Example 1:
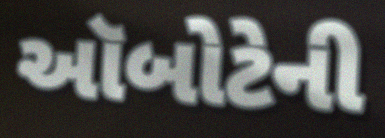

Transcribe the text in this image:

ઑબોટેની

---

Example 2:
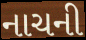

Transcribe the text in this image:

નાચની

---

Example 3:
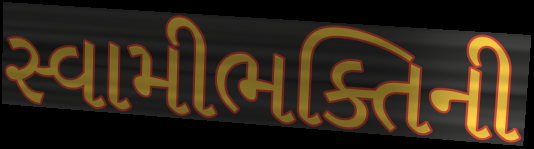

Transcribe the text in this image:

સ્વામીભક્તિની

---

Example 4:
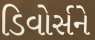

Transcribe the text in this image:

ડિવોર્સને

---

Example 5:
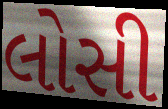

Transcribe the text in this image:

લોસી